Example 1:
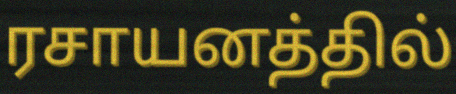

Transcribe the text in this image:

ரசாயனத்தில்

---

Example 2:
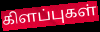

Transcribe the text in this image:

கிளப்புகள்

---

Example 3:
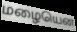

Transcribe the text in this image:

மழையென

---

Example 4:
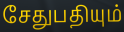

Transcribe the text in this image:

சேதுபதியும்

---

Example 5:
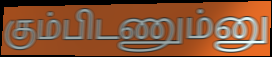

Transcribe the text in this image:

கும்பிடணும்னு